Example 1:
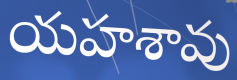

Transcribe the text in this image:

యహశావు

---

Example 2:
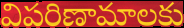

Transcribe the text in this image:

విపరిణామాలకు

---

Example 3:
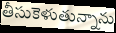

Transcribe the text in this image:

తీసుకెళుతున్నాను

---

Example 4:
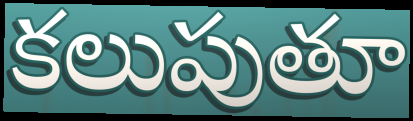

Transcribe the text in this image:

కలుపుతూ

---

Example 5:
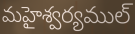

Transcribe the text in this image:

మహైశ్వర్యముల్